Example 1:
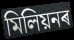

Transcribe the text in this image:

মিলিয়নৰ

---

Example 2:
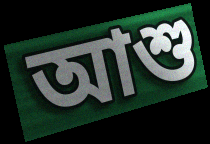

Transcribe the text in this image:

আশু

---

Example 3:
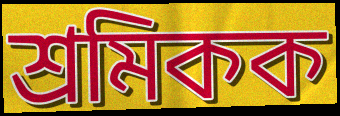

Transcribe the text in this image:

শ্ৰমিকক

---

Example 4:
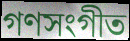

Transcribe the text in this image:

গণসংগীত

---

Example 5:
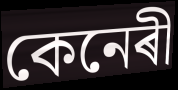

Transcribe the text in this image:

কেনেৰী